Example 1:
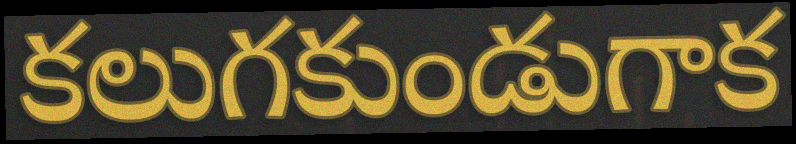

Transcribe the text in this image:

కలుగకుండుగాక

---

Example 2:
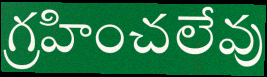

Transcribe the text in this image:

గ్రహించలేవు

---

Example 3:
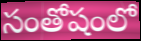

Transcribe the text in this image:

సంతోషంలో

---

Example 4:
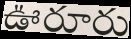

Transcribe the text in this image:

ఊరూరు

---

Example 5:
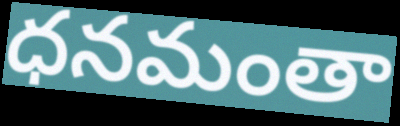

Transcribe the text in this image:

ధనమంతా